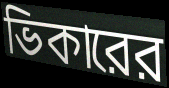
ভিকারের